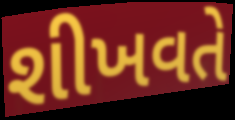
શીખવતે